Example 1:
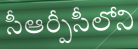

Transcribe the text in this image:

సీఆర్పీసీలోని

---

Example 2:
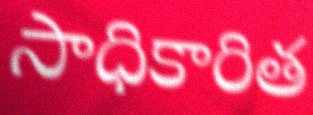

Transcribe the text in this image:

సాధికారిత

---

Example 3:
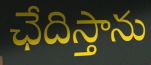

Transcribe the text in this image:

ఛేదిస్తాను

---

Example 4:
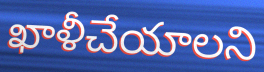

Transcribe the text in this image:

ఖాళీచేయాలని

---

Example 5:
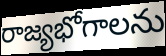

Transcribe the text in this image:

రాజ్యభోగాలను